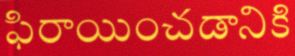
ఫిరాయించడానికి